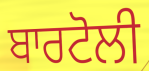
ਬਾਰਟੋਲੀ